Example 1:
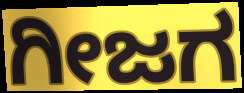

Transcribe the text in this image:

ಗೀಜಗ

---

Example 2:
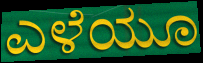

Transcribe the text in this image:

ಎಳೆಯೂ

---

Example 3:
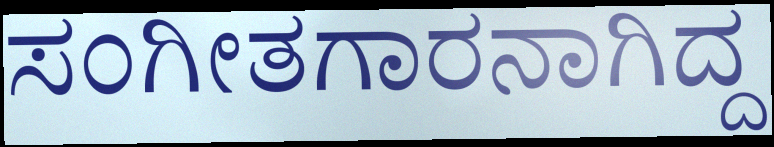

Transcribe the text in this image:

ಸಂಗೀತಗಾರನಾಗಿದ್ದ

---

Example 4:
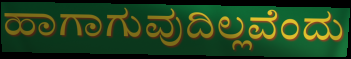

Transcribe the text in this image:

ಹಾಗಾಗುವುದಿಲ್ಲವೆಂದು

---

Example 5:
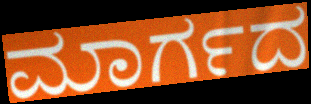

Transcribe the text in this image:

ಮಾರ್ಗದ